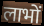
लाभों